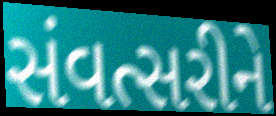
સંવત્સરીને